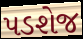
પડશેજ